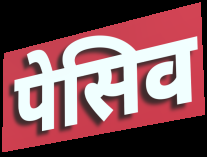
पेसिव